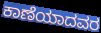
ಕಾಣೆಯಾದವರ